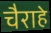
चैराहे